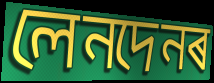
লেনদেনৰ